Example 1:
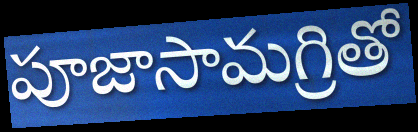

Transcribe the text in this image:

పూజాసామగ్రితో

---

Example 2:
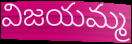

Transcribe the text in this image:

విజయమ్మ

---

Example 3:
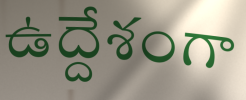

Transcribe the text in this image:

ఉద్దేశంగా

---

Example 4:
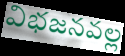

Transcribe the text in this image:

విభజనవల్ల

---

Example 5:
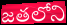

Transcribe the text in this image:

జతలోని